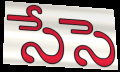
సేసె